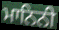
ਮਾਨਿਨੀ